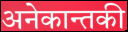
अनेकान्तकी